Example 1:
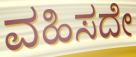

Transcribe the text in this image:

ವಹಿಸದೇ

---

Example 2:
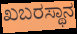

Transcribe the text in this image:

ಖಬರಸ್ಥಾನ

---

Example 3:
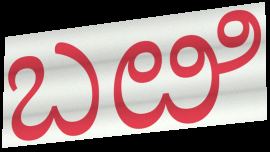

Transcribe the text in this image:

ಬೞಿ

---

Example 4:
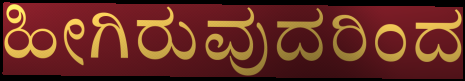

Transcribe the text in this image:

ಹೀಗಿರುವುದರಿಂದ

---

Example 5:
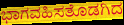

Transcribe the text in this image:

ಭಾಗವಹಿಸತೊಡಗಿದ